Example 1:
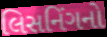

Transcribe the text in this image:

લિસનિંગનો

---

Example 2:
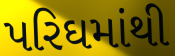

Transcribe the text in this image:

પરિઘમાંથી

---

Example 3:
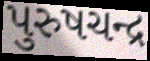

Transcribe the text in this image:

પુરુષચન્દ્ર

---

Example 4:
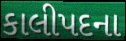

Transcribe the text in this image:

કાલીપદના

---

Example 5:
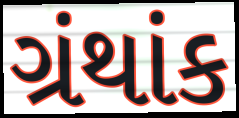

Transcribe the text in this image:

ગ્રંથાંક